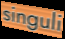
singuli